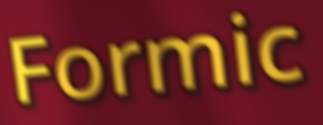
Formic